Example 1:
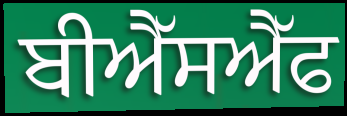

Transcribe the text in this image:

ਬੀਐੱਸਐੱਫ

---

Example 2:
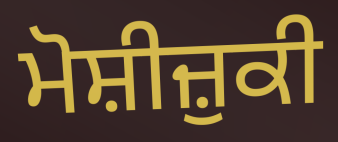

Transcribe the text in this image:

ਮੋਸ਼ੀਜ਼ੁਕੀ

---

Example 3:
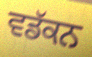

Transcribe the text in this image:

ਵਡੱਕਨ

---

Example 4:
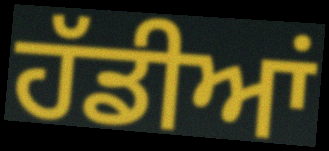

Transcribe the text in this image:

ਹੱਡੀਆਂ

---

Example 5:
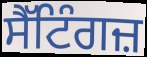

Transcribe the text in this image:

ਸੈੱਟਿੰਗਜ਼